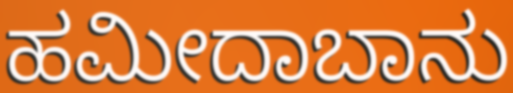
ಹಮೀದಾಬಾನು